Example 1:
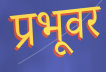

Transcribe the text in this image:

प्रभूवर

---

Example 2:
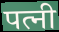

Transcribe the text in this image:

पत्‍नी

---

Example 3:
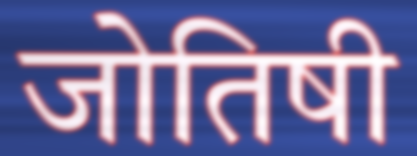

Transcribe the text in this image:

जोतिषी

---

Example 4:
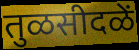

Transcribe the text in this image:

तुळसीदळें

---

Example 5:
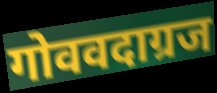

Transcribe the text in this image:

गोववदाग्रज